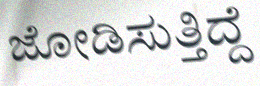
ಜೋಡಿಸುತ್ತಿದ್ದೆ